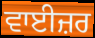
ਵਾਈਜ਼ਰ